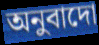
অনুবাদো